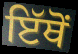
ਇੱਥੋਂ